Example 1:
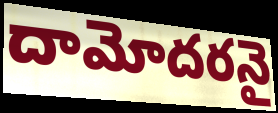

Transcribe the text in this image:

దామోదరనై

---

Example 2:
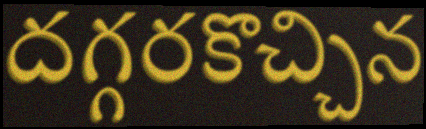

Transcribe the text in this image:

దగ్గరకొచ్చిన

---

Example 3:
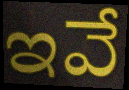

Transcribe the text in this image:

ఇవే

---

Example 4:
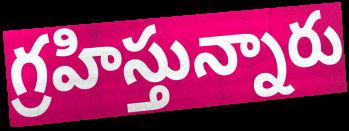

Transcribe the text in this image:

గ్రహిస్తున్నారు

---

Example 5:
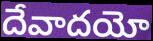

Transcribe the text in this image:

దేవాదయో